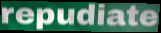
repudiate